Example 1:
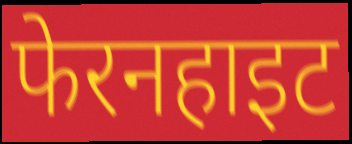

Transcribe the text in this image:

फेरनहाइट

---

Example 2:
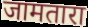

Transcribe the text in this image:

जामतारा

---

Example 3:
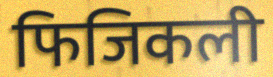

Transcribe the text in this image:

फिजिकली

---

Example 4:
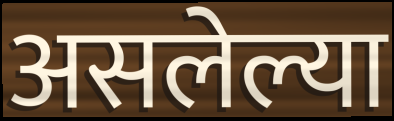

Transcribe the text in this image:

असलेल्या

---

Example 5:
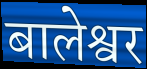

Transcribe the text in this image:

बालेश्वर